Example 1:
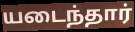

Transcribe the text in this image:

யடைந்தார்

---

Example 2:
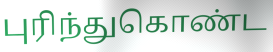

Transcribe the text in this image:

புரிந்துகொண்ட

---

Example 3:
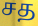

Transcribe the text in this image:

சத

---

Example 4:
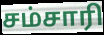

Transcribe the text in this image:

சம்சாரி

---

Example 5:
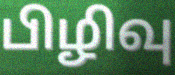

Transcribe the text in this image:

பிழிவு